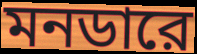
মনডারে